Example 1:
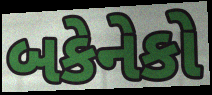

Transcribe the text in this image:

બકેનેકો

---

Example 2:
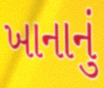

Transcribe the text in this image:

ખાનાનું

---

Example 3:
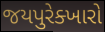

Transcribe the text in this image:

જયપુરેક્ખારો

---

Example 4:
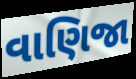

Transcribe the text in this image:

વાણિજા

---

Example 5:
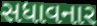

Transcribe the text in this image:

સધાવનાર